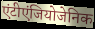
एंटीएंजियोजेनिक